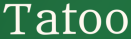
Tatoo